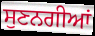
ਸੁਣਨਗੀਆਂ